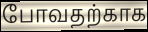
போவதற்காக